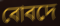
বোবদে